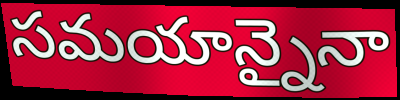
సమయాన్నైనా